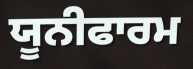
ਯੂਨੀਫਾਰਮ